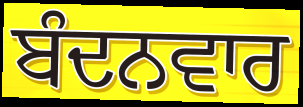
ਬੰਦਨਵਾਰ